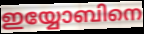
ഇയ്യോബിനെ